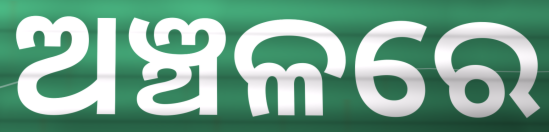
ଅଞ୍ଚଳରେ